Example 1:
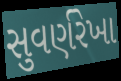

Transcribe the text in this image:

સુવર્ણરેખા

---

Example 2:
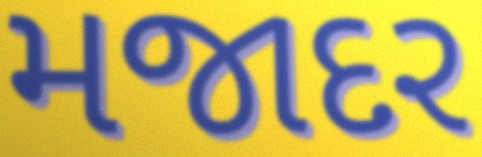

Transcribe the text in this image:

મજાદર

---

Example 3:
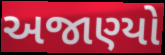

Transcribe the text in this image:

અજાણ્યો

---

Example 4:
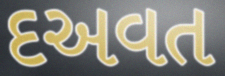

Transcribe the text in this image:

દઅવત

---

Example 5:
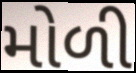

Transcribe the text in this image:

મોળી